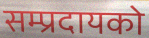
सम्प्रदायको